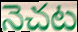
నెచట